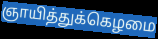
ஞாயித்துக்கெழமை